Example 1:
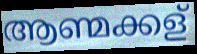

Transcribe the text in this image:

ആണ്മക്കള്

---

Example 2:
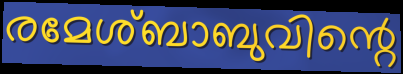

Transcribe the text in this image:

രമേശ്ബാബുവിന്റെ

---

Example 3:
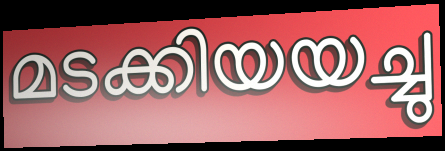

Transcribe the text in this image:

മടക്കിയയച്ചു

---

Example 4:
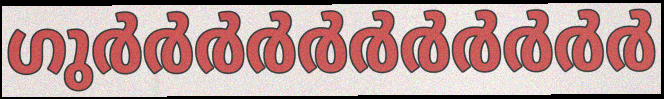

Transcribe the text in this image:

ഗുർർർർർർർർർർർ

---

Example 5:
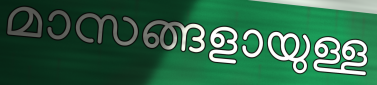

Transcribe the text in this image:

മാസങ്ങളായുള്ള